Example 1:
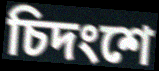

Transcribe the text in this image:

চিদংশে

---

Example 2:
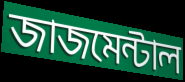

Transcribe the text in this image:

জাজমেন্টাল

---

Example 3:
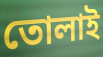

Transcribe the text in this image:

তোলাই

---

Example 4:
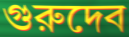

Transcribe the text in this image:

গুরুদেব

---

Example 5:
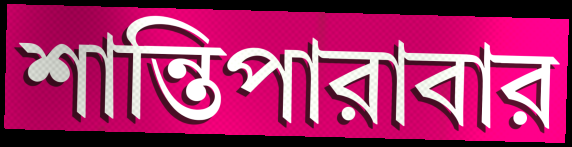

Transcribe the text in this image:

শান্তিপারাবার